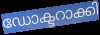
ഡോക്ടറാക്കി